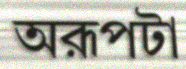
অরূপটা